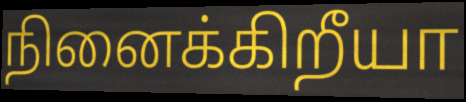
நினைக்கிறீயா